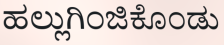
ಹಲ್ಲುಗಿಂಜಿಕೊಂಡು